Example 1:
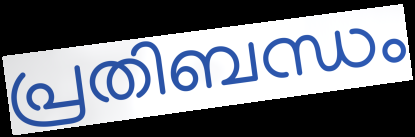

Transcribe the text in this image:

പ്രതിബന്ധം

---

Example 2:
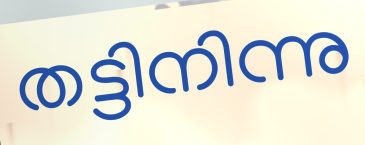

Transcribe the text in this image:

തട്ടിനിന്നു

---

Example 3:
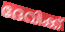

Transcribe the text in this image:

ദേവിക്ക്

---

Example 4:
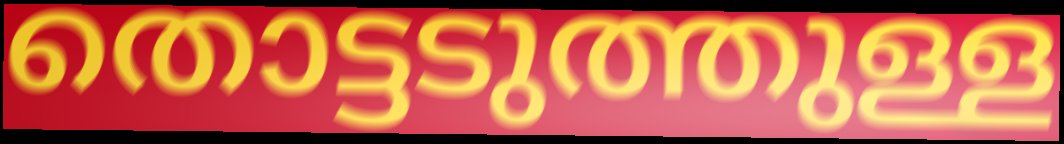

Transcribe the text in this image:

തൊട്ടടുത്തുള്ള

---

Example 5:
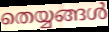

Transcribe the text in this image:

തെയ്യങ്ങൾ